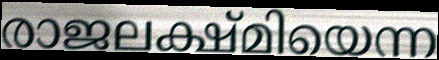
രാജലക്ഷ്മിയെന്ന